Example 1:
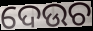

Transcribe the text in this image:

ଦେଉଚ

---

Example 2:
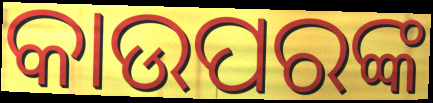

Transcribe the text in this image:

କାଉପରଙ୍କ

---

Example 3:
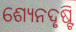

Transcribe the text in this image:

ଶ୍ୟେନଦୃଷ୍ଟି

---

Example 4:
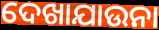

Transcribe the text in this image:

ଦେଖାଯାଉନା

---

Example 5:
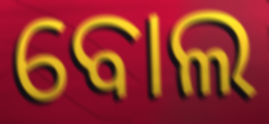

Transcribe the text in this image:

ବୋଲ